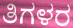
ತಿಗಳರ